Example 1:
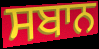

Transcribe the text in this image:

ਸਬਾਨ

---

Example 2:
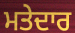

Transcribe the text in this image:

ਮਤੇਦਾਰ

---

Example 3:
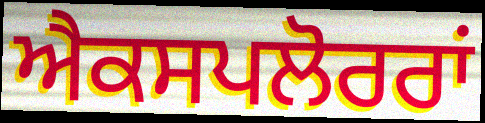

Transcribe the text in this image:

ਐਕਸਪਲੋਰਰਾਂ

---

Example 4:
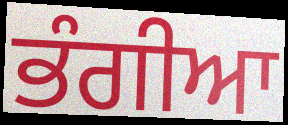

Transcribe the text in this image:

ਭੰਗੀਆ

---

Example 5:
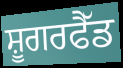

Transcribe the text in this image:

ਸ਼ੂਗਰਫੈੱਡ